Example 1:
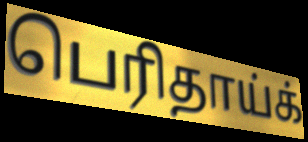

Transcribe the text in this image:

பெரிதாய்க்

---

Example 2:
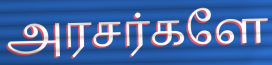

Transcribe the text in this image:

அரசர்களே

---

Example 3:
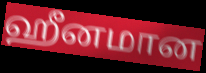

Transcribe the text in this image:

ஹீனமான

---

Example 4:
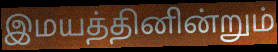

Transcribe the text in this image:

இமயத்தினின்றும்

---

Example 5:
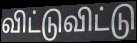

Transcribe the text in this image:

விட்டுவிட்டு